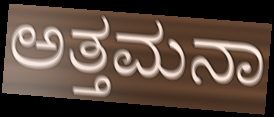
ಅತ್ತಮನಾ